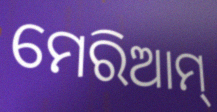
ମେରିଆମ୍